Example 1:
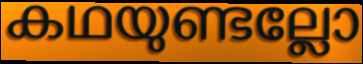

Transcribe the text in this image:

കഥയുണ്ടല്ലോ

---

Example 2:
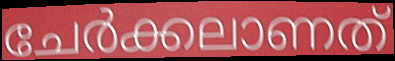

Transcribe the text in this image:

ചേർക്കലാണത്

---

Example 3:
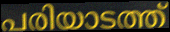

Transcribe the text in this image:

പരിയാടത്ത്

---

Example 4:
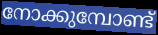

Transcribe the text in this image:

നോക്കുമ്പോണ്ട്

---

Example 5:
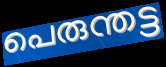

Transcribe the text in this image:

പെരുന്തട്ട